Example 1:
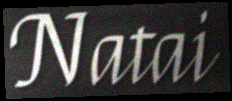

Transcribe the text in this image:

Natai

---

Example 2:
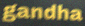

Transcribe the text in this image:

gandha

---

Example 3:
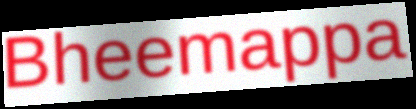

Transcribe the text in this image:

Bheemappa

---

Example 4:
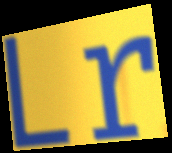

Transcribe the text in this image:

Lr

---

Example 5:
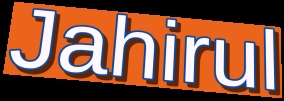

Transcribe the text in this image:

Jahirul